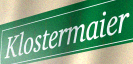
Klostermaier